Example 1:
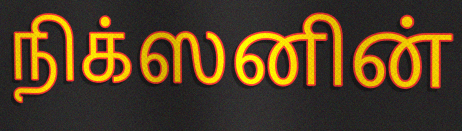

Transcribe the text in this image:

நிக்ஸனின்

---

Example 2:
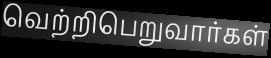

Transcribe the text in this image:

வெற்றிபெறுவார்கள்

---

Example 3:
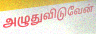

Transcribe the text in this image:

அழுதுவிடுவேன்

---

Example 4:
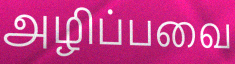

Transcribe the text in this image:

அழிப்பவை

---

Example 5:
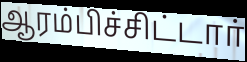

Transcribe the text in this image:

ஆரம்பிச்சிட்டார்